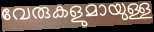
വേരുകളുമായുള്ള